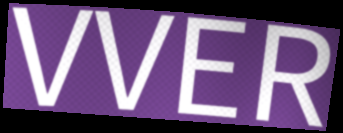
VVER